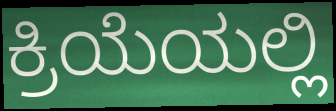
ಕ್ರಿಯೆಯಲ್ಲಿ